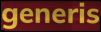
generis